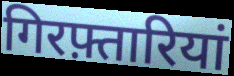
गिरफ़्तारियां